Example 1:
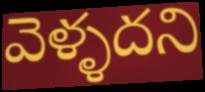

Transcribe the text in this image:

వెళ్ళదని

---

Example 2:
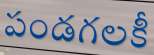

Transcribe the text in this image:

పండగలకీ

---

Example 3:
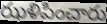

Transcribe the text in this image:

ఝళిపించారు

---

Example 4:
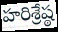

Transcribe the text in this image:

హరిశ్రేష్ఠ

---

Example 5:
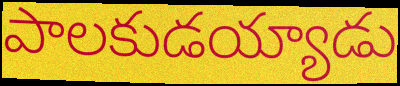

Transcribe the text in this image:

పాలకుడయ్యాడు